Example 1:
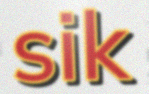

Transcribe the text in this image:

sik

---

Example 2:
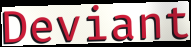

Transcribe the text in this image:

Deviant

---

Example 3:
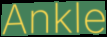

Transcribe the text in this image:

Ankle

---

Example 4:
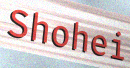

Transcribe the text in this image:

Shohei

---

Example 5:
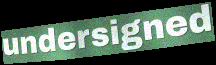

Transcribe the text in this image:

undersigned